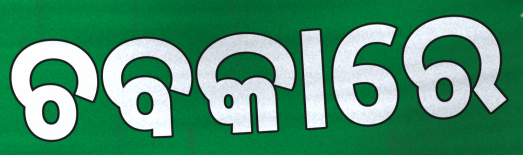
ଚବକାରେ